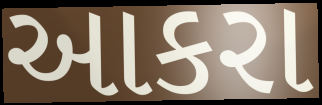
આકરા